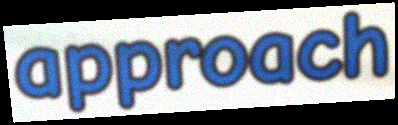
approach